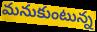
మనుకుంటున్న